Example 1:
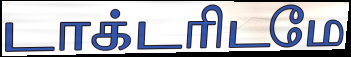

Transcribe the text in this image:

டாக்டரிடமே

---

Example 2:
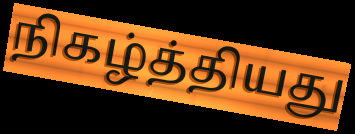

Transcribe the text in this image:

நிகழ்த்தியது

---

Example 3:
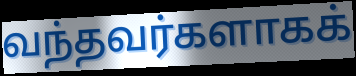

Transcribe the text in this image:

வந்தவர்களாகக்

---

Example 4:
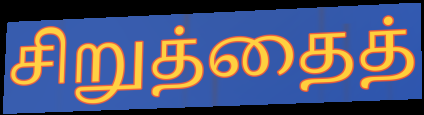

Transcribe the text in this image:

சிறுத்தைத்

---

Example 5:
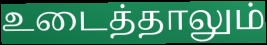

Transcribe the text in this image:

உடைத்தாலும்